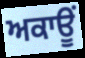
ਅਕਾਊਂ